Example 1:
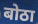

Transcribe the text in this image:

बोठा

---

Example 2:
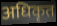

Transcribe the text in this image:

अधिकृत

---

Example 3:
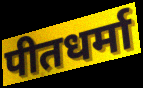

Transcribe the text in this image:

पीतधर्मा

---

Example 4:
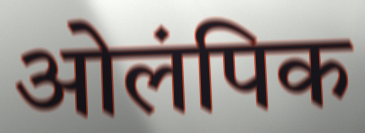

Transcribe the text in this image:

ओलंपिक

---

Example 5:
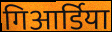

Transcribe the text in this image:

गिआर्डिया